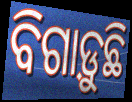
ବିଗାଡ଼ୁଛି